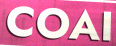
COAI